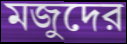
মজুদের